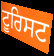
ਟੂਰਿਸਟ